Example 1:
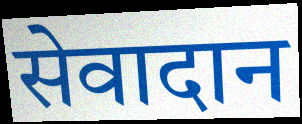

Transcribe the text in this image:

सेवादान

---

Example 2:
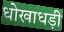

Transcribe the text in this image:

धोखाधड़ी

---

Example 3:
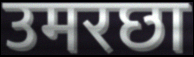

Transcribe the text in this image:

उमरछा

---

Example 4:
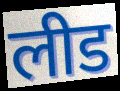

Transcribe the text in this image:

लीड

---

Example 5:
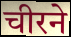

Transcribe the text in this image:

चीरने